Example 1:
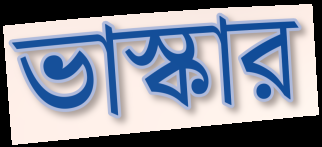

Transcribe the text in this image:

ভাস্কার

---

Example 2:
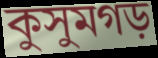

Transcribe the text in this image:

কুসুমগড়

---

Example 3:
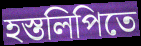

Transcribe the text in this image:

হস্তলিপিতে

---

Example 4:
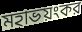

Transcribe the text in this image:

মহাভয়ংকর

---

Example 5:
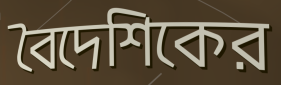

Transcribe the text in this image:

বৈদেশিকের